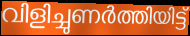
വിളിച്ചുണർത്തിയിട്ട്